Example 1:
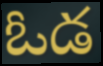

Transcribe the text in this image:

ఓడ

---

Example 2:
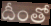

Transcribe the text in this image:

దీంతో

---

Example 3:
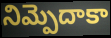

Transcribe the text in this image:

నిమ్పెదాకా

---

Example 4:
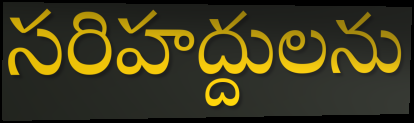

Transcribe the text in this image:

సరిహద్దులను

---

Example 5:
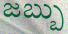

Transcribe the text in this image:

జబ్బు